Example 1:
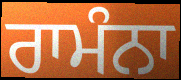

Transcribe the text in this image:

ਰਾਮੰਨਾ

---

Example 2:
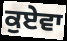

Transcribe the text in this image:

ਕੁਏਵਾ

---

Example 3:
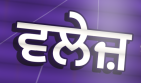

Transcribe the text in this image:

ਵਲੇਜ਼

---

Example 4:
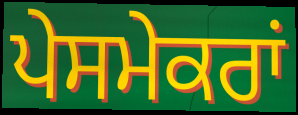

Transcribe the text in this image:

ਪੇਸਮੇਕਰਾਂ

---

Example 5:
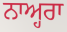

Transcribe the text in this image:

ਨਾਅ੍ਹਰਾ